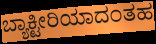
ಬ್ಯಾಕ್ಟೀರಿಯಾದಂತಹ